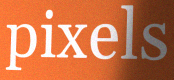
pixels